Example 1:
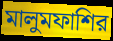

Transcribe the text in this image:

মালুমফাশির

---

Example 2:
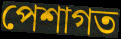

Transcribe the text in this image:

পেশাগত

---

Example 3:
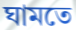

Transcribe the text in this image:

ঘামতে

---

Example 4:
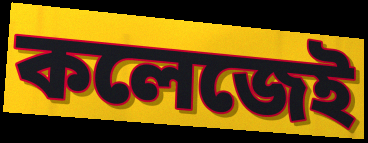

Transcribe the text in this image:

কলেজেই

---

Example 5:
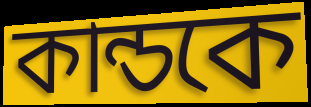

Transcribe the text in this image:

কান্ডকে